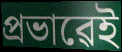
প্ৰভাৱেই